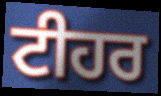
ਟੀਹਰ